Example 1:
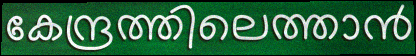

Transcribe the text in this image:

കേന്ദ്രത്തിലെത്താൻ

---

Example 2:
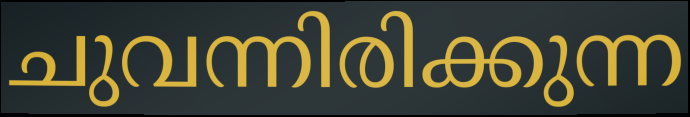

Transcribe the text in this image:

ചുവന്നിരിക്കുന്ന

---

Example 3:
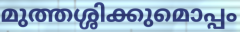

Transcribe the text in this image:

മുത്തശ്ശിക്കുമൊപ്പം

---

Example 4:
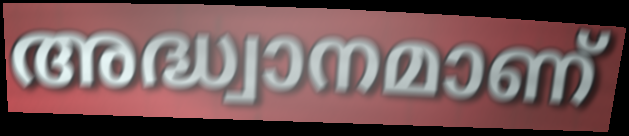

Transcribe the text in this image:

അദ്ധ്വാനമാണ്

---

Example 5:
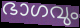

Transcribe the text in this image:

ഭാഗവും